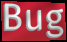
Bug